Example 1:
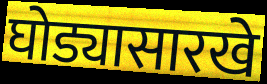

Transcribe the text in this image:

घोड्यासारखे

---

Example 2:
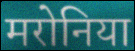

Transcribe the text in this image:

मरोनिया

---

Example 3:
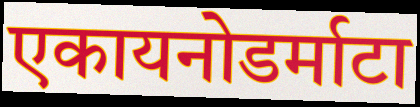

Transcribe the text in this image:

एकायनोडर्माटा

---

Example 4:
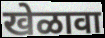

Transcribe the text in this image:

खेळावा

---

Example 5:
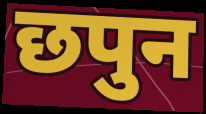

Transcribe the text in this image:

छपुन